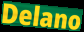
Delano